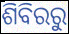
ଶିବିରରୁ